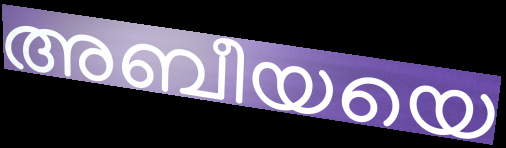
അബീയയെ